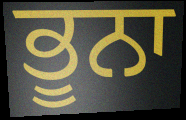
ਭੂਨਾ